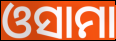
ଓସାମା